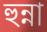
হুন্না